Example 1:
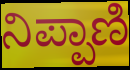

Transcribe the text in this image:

ನಿಪ್ಪಾಣಿ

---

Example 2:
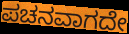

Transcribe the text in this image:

ಪಚನವಾಗದೇ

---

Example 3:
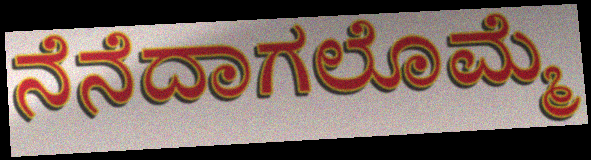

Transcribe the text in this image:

ನೆನೆದಾಗಲೊಮ್ಮೆ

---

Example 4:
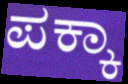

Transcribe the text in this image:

ಪಕ್ಕಾ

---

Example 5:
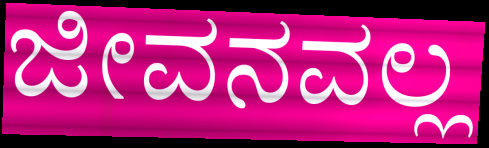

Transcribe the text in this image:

ಜೀವನವಲ್ಲ